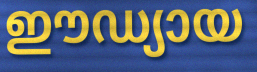
ഈഡ്യായ